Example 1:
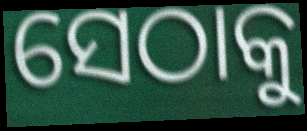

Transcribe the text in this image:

ସେଠାକୁ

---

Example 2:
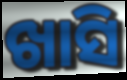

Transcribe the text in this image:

ଖାସି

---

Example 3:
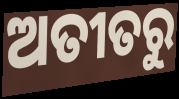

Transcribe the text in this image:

ଅତୀତରୁ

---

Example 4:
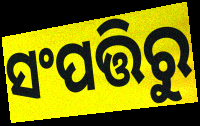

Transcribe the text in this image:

ସଂପତ୍ତିରୁ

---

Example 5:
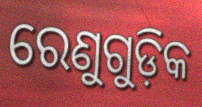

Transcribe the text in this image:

ରେଣୁଗୁଡ଼ିକ